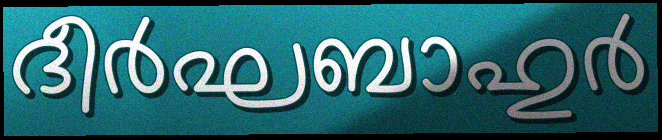
ദീർഘബാഹുർ